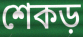
শেকড়